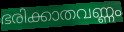
ഭരിക്കാതവണ്ണം